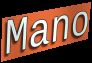
Mano